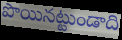
పొయినట్టుండాది